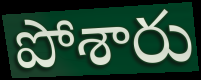
పోశారు